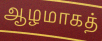
ஆழமாகத்